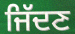
ਜਿੱਦਣ